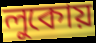
লুকোয়